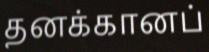
தனக்கானப்